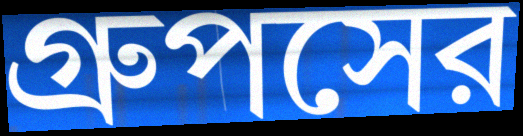
গ্রুপসের